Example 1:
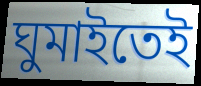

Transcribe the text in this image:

ঘুমাইতেই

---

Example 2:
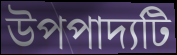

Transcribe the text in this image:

উপপাদ্যটি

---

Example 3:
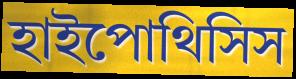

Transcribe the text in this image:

হাইপোথিসিস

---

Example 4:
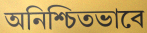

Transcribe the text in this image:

অনিশ্চিতভাবে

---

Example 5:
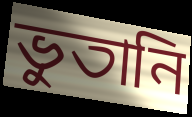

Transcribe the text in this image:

ভুতানি